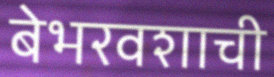
बेभरवशाची